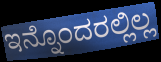
ಇನ್ನೊಂದರಲ್ಲಿಲ್ಲ